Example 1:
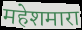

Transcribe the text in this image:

महेशमारा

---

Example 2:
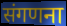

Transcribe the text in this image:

संगणना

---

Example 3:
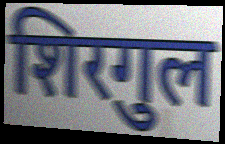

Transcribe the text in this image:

शिरगुल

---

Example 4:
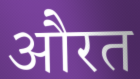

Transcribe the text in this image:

औरत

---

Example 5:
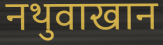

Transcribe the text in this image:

नथुवाखान